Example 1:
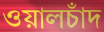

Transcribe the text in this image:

ওয়ালচাঁদ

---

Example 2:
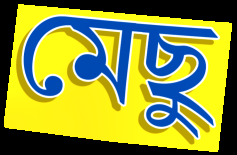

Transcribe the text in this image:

মেছু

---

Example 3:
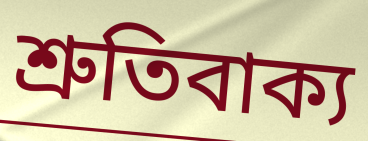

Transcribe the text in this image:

শ্রুতিবাক্য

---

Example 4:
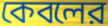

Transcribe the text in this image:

কেবলের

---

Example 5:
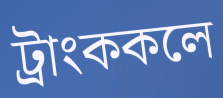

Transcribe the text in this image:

ট্রাংককলে